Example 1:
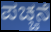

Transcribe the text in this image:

ಪಚ್ಚನೆ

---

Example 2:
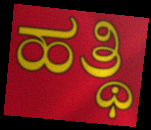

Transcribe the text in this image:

ಹತ್ಥಿ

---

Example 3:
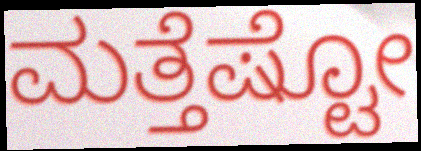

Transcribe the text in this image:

ಮತ್ತೆಷ್ಟೋ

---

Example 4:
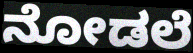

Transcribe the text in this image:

ನೋಡಲೆ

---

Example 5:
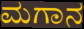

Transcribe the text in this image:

ಮಗಾನ